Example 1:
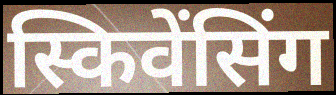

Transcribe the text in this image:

स्किवेंसिंग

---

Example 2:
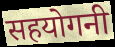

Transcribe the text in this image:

सहयोगनी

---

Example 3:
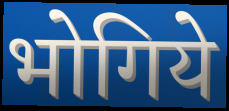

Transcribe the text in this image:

भोगिये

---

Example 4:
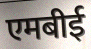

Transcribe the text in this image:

एमबीई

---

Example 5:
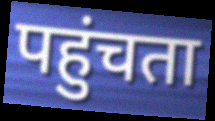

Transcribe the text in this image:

पहुंचता